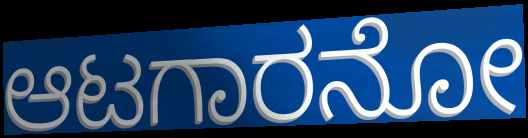
ಆಟಗಾರನೋ